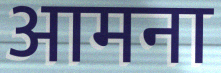
आमना